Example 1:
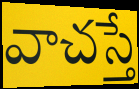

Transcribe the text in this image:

వాచస్తే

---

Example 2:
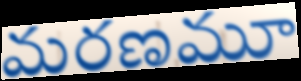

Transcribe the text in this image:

మరణమూ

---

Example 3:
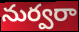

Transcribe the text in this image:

నుర్వరా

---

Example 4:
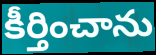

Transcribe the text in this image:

కీర్తించాను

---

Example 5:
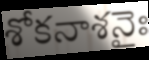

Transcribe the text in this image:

శోకనాశనైః